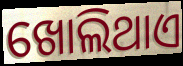
ଖୋଲିଥାଏ